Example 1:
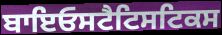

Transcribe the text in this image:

ਬਾਇਓਸਟੈਟਿਸਟਿਕਸ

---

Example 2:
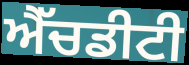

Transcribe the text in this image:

ਐੱਚਡੀਟੀ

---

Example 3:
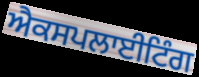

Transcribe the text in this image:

ਐਕਸਪਲਾਈਟਿੰਗ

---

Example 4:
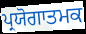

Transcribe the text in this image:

ਪ੍ਰਯੋਗਾਤਮਕ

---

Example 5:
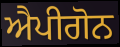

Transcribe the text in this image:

ਐਪੀਗੋਨ